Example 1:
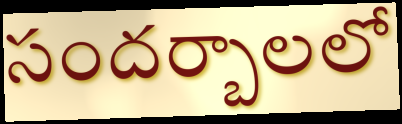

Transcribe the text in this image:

సందర్బాలలో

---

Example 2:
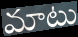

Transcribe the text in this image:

మాటు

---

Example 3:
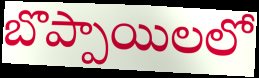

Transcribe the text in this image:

బొప్పాయిలలో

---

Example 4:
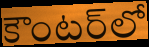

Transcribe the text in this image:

కౌంటర్‌లో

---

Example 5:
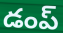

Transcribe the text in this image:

డంప్